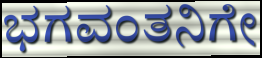
ಭಗವಂತನಿಗೇ